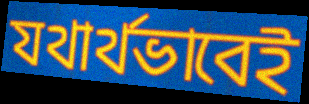
যথার্থভাবেই